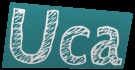
Uca